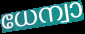
ധേന്വാ